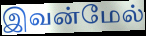
இவன்மேல்